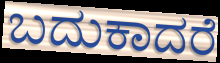
ಬದುಕಾದರೆ